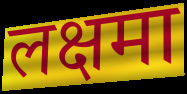
लक्षमा